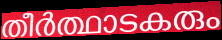
തീർത്ഥാടകരും